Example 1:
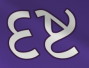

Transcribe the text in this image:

દષ્ટ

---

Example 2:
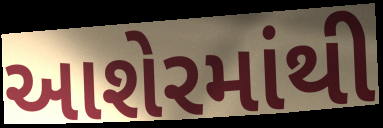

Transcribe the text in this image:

આશેરમાંથી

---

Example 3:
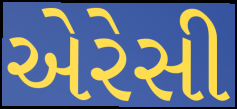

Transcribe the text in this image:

એરેસી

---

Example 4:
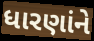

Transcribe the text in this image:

ધારણાંને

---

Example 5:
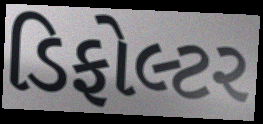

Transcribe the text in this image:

ડિફોલ્ટર